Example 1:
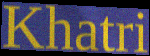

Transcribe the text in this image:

Khatri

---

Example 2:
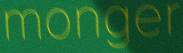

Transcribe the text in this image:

monger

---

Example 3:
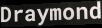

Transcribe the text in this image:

Draymond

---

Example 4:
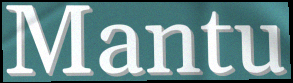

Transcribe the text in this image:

Mantu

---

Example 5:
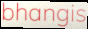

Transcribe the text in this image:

bhangis